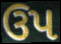
ઉપ